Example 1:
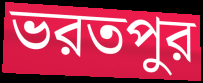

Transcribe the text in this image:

ভরতপুর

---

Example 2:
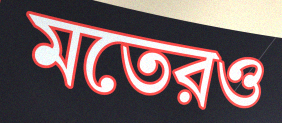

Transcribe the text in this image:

মতেরও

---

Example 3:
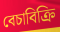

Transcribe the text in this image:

বেচাবিক্রি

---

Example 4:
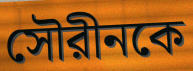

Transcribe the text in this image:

সৌরীনকে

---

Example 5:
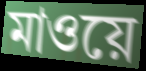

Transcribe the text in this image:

মাওয়ে